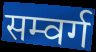
सम्वर्ग